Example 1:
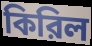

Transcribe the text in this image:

কিরিল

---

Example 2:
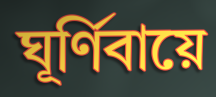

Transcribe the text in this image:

ঘূর্ণিবায়ে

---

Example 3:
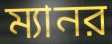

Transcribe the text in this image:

ম্যানর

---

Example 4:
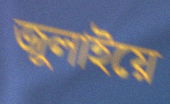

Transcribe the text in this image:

জুলাইয়ে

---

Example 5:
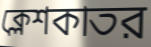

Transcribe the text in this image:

ক্লেশকাতর